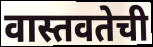
वास्तवतेची